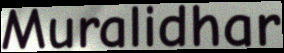
Muralidhar